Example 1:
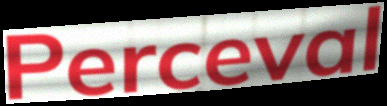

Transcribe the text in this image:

Perceval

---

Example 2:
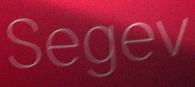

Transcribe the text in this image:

Segev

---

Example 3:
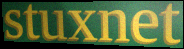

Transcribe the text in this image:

stuxnet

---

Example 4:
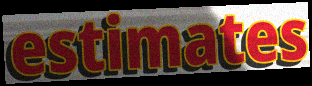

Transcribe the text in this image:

estimates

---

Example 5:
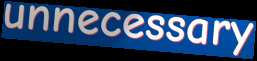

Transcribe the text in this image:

unnecessary